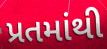
પ્રતમાંથી